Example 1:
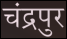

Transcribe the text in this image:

चंद्रपुर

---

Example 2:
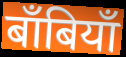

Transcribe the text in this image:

बाँबियाँ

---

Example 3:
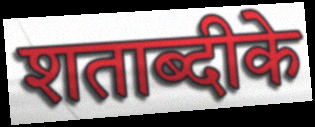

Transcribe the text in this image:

शताब्दीके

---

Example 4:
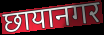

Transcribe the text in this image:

छायानगर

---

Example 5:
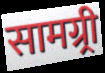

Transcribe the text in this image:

सामग्र्री